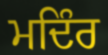
ਮਦਿੰਰ